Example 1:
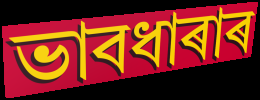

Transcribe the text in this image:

ভাবধাৰাৰ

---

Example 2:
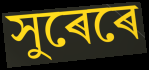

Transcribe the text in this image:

সুৰেৰে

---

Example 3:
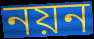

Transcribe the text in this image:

নয়ন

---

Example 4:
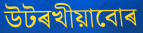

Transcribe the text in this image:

উটৰখীয়াবোৰ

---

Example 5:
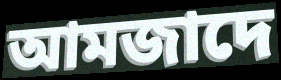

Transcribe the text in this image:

আমজাদে